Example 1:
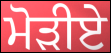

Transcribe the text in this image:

ਮੋੜੀਏ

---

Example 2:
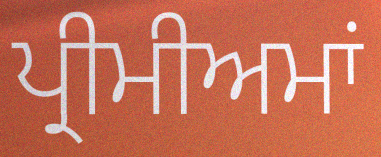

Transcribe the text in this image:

ਪ੍ਰੀਮੀਅਮਾਂ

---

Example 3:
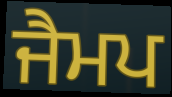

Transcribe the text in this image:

ਜੈਮਪ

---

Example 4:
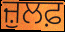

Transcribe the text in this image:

ਜ਼ੁਲਫ਼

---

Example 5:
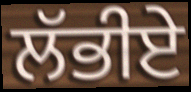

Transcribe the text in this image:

ਲੱਭੀਏ